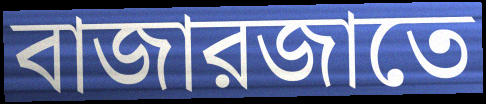
বাজারজাতে